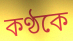
কণ্ঠকে